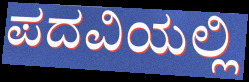
ಪದವಿಯಲ್ಲಿ